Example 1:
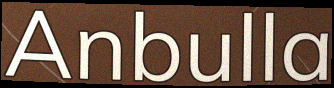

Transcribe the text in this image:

Anbulla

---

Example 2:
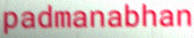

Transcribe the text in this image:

padmanabhan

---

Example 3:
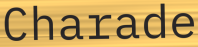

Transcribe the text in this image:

Charade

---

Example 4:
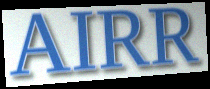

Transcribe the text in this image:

AIRR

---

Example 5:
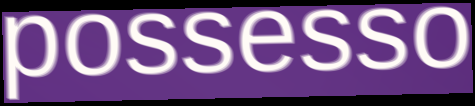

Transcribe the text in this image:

possesso